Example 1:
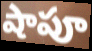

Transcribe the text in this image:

షాపూ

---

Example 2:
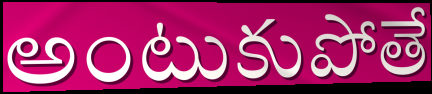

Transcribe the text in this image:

అంటుకుపోతే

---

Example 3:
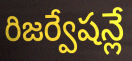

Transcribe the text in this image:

రిజర్వేషన్లే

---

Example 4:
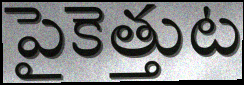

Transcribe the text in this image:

పైకెత్తుట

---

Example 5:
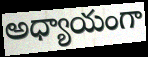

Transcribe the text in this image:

అధ్యాయంగా